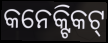
କନେକ୍ଟିକଟ୍